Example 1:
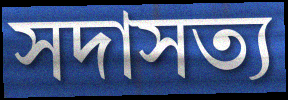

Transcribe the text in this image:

সদাসত্য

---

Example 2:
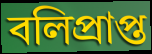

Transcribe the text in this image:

বলিপ্রাপ্ত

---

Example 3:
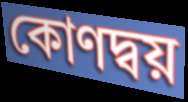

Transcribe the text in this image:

কোণদ্বয়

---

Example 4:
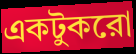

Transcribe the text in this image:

একটুকরো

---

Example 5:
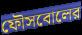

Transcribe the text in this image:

ফৌসবোলের